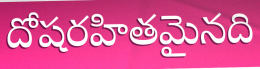
దోషరహితమైనది